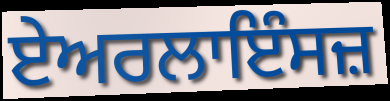
ਏਅਰਲਾਇੰਸਜ਼